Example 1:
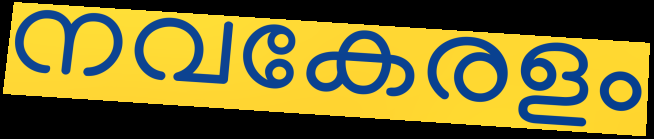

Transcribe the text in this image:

നവകേരളം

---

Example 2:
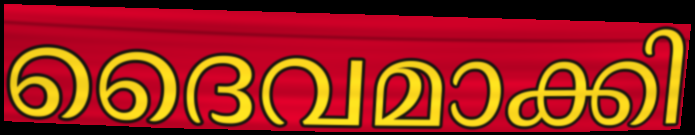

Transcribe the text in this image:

ദൈവമാക്കി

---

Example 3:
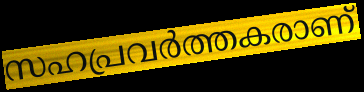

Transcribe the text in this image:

സഹപ്രവർത്തകരാണ്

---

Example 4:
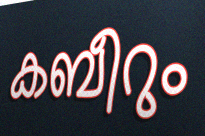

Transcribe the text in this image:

കബീറും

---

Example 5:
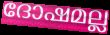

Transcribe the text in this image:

ദോഷമല്ല